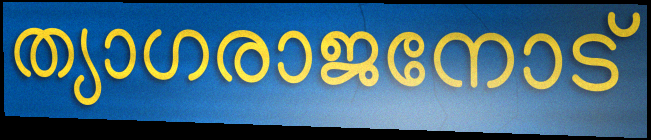
ത്യാഗരാജനോട്